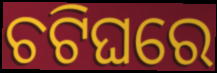
ଚଟିଘରେ